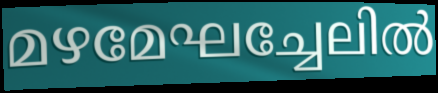
മഴമേഘച്ചേലിൽ